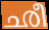
ഛീ